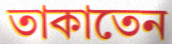
তাকাতেন